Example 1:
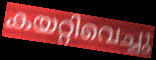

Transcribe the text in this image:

കയറ്റിവെച്ചു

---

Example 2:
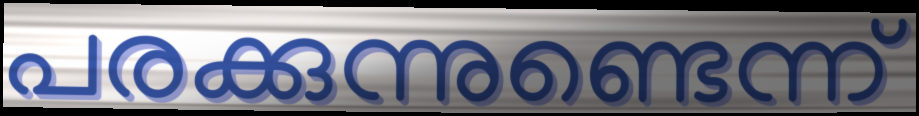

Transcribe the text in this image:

പരക്കുന്നുണ്ടെന്ന്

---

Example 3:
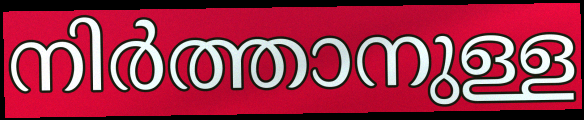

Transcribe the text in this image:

നിർത്താനുള്ള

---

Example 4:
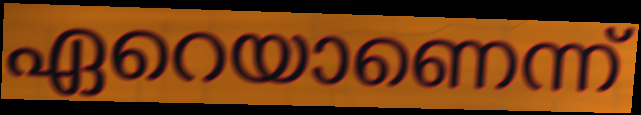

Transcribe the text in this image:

ഏറെയാണെന്ന്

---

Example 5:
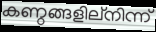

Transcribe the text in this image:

കണ്ഠങ്ങളില്നിന്ന്